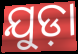
ଯୁଡ଼ା